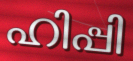
ഹിപ്പി